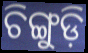
ଚିଙ୍ଗୁଡ଼ି